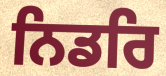
ਨਿਡਰਿ